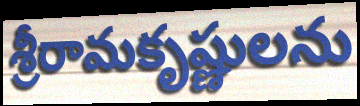
శ్రీరామకృష్ణులను